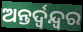
ଅନ୍ତର୍ଦ୍ୱନ୍ଦ୍ୱର